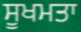
ਸੂਖਮਤਾ